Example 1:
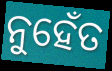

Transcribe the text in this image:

ନୁହେଁତ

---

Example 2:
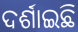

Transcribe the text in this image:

ଦର୍ଶାଇଛି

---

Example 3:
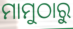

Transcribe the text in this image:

ମାମୁଠାରୁ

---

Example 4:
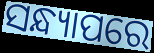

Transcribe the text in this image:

ସନ୍ଧ୍ୟାପରେ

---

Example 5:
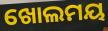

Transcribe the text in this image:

ଖୋଲମୟ